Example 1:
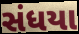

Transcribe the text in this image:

સંધયા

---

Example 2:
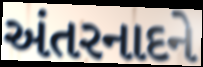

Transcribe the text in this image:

અંતરનાદને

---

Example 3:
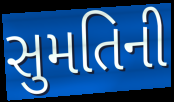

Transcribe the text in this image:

સુમતિની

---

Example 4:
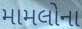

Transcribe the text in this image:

મામલોના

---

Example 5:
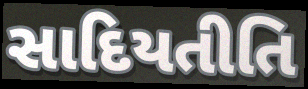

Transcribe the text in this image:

સાદિયતીતિ